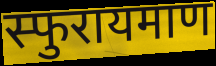
स्फुरायमाण